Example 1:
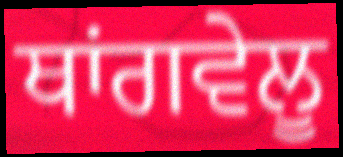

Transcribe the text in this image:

ਥਾਂਗਵੇਲੂ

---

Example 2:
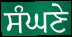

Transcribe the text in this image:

ਸੰਘਣੇ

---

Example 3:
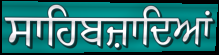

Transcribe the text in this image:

ਸਾਹਿਬਜ਼ਾਦਿਆਂ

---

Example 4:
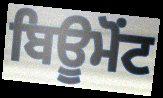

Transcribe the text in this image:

ਬਿਊਮੋਂਟ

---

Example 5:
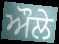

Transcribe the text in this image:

ਔਲੇ